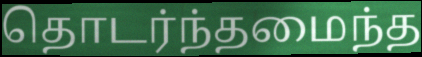
தொடர்ந்தமைந்த